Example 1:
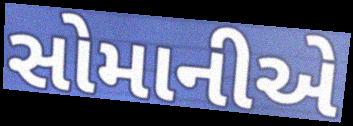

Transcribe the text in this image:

સોમાનીએ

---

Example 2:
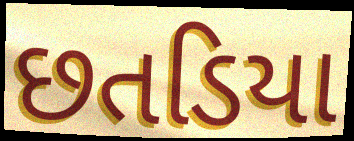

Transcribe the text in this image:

છતડિયા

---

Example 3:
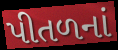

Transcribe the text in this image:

પીતળનાં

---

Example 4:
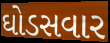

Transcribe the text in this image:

ઘોડસવાર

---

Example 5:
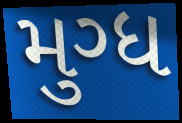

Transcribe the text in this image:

મુગ્ધ